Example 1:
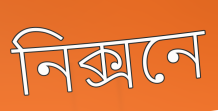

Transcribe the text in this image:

নিক্সনে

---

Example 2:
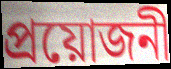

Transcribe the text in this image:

প্ৰয়োজনী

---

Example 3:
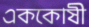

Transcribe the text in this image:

এককোষী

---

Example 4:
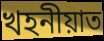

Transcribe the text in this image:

খহনীয়াত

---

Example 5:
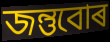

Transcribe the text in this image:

জন্তুবোৰ